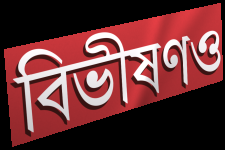
বিভীষণও